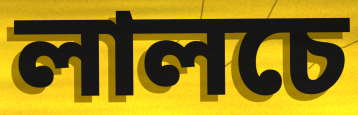
লালচে